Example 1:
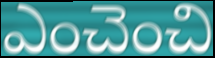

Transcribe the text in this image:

ఎంచెంచి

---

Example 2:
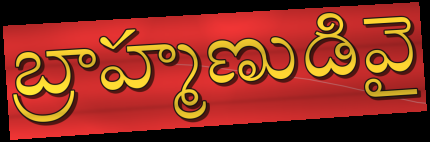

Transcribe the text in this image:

బ్రాహ్మణుడివై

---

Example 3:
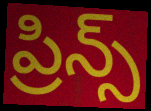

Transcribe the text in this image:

ప్రిన్స్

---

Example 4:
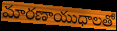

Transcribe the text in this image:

మారణాయుధాలతో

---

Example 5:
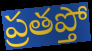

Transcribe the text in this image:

ప్రతప్తో